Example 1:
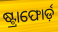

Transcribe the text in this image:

ଷ୍ଟ୍ରାଫୋର୍ଡ଼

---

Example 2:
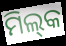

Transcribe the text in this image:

ମିଲ୍‌କ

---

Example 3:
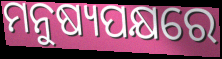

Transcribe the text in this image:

ମନୁଷ୍ୟପକ୍ଷରେ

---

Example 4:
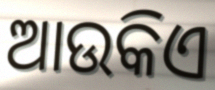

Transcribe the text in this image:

ଆଉକିଏ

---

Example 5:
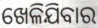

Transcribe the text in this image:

ଖେଳିଯିବାର